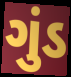
ગુંડ